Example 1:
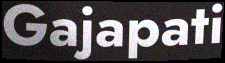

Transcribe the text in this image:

Gajapati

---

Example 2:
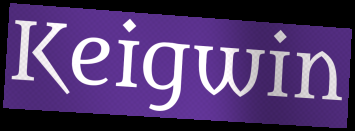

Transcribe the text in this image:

Keigwin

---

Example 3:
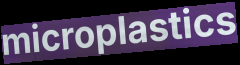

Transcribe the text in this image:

microplastics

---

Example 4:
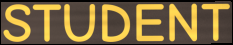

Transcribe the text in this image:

STUDENT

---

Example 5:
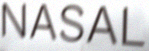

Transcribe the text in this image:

NASAL